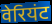
वेरियंट